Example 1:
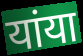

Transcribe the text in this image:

यांया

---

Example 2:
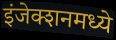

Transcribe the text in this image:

इंजेक्शनमध्ये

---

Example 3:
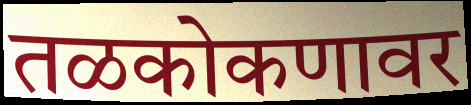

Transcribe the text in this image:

तळकोकणावर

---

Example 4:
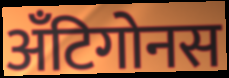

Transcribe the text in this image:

अँटिगोनस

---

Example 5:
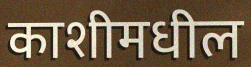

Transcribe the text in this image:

काशीमधील